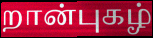
றான்புகழ்